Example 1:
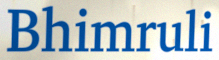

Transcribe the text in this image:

Bhimruli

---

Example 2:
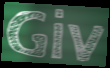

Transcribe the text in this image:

Giv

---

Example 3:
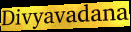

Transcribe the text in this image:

Divyavadana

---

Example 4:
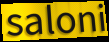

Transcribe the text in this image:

saloni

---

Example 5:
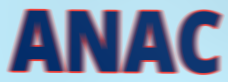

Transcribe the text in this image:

ANAC